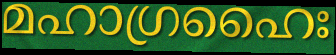
മഹാഗ്രഹൈഃ